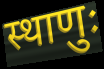
स्थाणुः